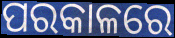
ପରକାଳରେ